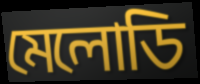
মেলোডি